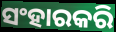
ସଂହାରକରି